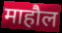
माहौल